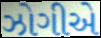
ઝોગીએ